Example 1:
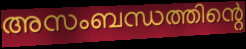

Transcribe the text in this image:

അസംബന്ധത്തിന്റെ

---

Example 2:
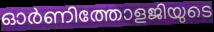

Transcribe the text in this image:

ഓർണിത്തോളജിയുടെ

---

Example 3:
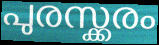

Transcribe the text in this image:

പുരസ്ക്കരം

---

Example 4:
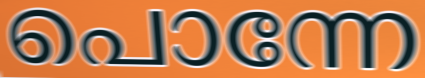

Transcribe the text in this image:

പൊന്നേ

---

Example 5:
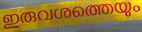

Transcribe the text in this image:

ഇരുവശത്തെയും